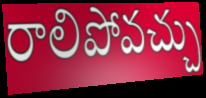
రాలిపోవచ్చు